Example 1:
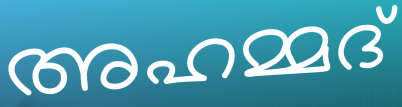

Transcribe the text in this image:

അഹമ്മദ്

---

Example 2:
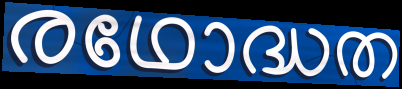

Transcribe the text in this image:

രഥോദ്ധത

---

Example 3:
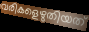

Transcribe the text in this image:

വരികളെഴുതിയത്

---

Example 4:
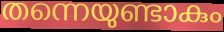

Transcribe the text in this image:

തന്നെയുണ്ടാകും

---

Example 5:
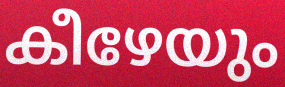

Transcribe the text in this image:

കീഴേയും